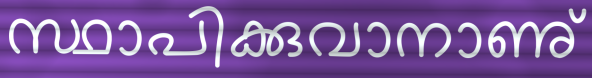
സ്ഥാപിക്കുവാനാണു്